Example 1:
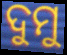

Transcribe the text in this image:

ଦୁମୁ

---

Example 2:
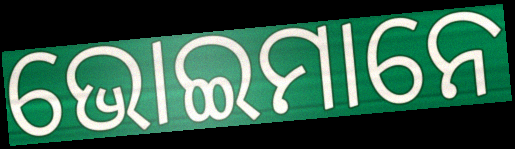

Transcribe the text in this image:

ଭୋଇମାନେ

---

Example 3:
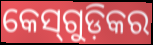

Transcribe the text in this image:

କେସ୍‌ଗୁଡ଼ିକର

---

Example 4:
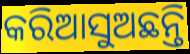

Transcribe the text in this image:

କରିଆସୁଅଛନ୍ତି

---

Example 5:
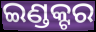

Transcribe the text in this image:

ଇଣ୍ଡକ୍ଟର